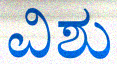
ವಿಶು